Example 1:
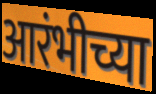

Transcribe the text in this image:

आरंभीच्या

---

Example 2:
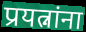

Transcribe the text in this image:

प्रयत्नांना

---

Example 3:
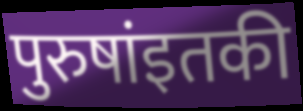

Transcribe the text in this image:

पुरुषांइतकी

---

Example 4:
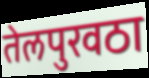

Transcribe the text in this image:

तेलपुरवठा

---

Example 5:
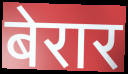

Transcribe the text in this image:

बेरार